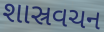
શાસ્રવચન